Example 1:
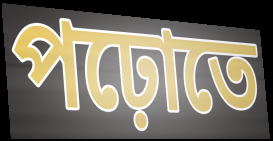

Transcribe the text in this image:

পঢ়োতে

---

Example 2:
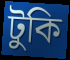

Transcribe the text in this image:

টুকি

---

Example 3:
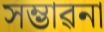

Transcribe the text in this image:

সম্ভাৱনা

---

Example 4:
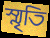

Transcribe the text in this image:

স্মৃতি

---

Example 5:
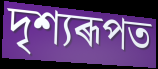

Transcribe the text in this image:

দৃশ্যৰূপত